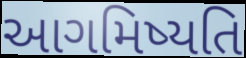
આગમિષ્યતિ